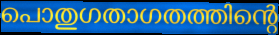
പൊതുഗതാഗതത്തിന്റെ